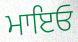
ਮਾਇਓ